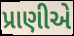
પ્રાણીએ